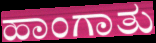
ಹಾಂಗಾತು